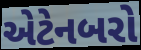
એટેનબરો